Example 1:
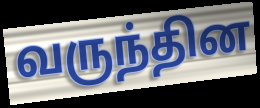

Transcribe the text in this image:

வருந்தின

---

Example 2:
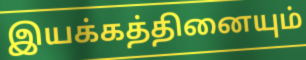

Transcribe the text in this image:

இயக்கத்தினையும்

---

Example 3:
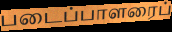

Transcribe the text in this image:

படைப்பாளரைப்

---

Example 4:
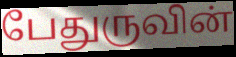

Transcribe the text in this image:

பேதுருவின்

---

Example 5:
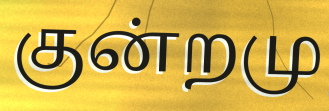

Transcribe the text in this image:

குன்றமு